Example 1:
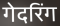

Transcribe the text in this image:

गेदरिंग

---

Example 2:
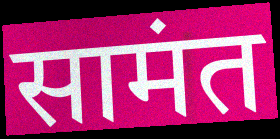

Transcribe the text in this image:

सामंत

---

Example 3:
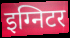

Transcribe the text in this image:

इग्निटर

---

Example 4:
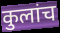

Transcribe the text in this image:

कुलांच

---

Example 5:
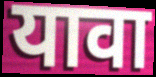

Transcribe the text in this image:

यावा